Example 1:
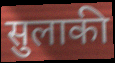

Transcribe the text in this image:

सुलाकी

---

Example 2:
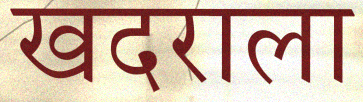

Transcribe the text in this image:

खदराला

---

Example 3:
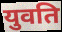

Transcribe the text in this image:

युवति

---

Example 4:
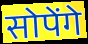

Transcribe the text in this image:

सोपेंगे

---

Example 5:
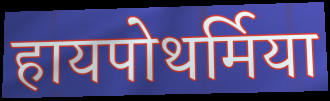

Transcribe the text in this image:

हायपोथर्मिया